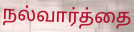
நல்வார்த்தை